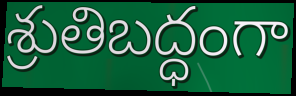
శ్రుతిబద్ధంగా